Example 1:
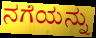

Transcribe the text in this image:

ನಗೆಯನ್ನು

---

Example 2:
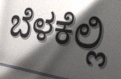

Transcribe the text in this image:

ಬೆಳಕೆಲ್ಲಿ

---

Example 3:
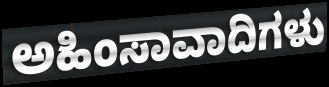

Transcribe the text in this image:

ಅಹಿಂಸಾವಾದಿಗಳು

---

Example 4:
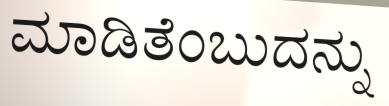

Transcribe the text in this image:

ಮಾಡಿತೆಂಬುದನ್ನು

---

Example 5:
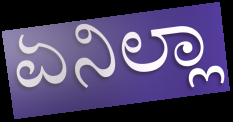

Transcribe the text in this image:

ಏನಿಲ್ಲಾ